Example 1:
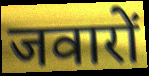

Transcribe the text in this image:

जवारों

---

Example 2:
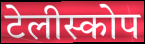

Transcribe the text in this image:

टेलीस्‍कोप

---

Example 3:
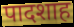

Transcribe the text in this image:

पादशाह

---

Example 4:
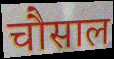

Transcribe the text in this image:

चौसाल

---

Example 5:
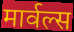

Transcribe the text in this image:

मार्वल्स